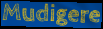
Mudigere